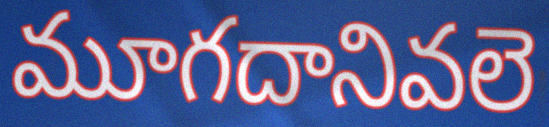
మూగదానివలె